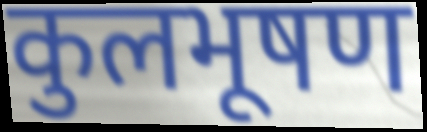
कुलभूषण